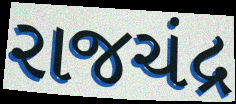
રાજચંદ્ર